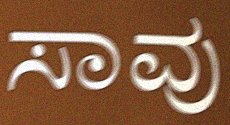
ಸಾವು